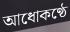
আধোকণ্ঠে